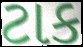
ટાક